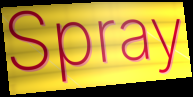
Spray